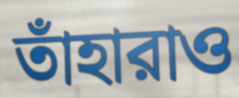
তাঁহারাও